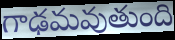
గాఢమవుతుంది